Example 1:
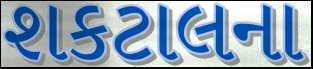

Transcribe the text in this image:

શકટાલના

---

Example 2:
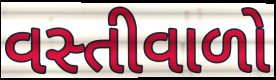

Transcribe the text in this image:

વસ્તીવાળો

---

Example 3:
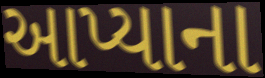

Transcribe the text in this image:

આપ્યાના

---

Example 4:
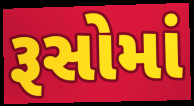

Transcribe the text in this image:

રૂસોમાં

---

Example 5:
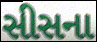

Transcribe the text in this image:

સીસના